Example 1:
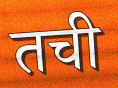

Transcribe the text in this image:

तची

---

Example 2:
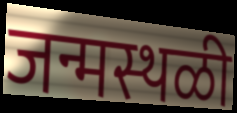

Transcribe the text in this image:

जन्मस्थळी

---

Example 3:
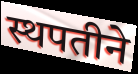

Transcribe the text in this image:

स्थपतीने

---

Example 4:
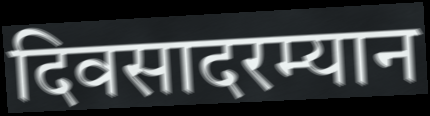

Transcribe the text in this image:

दिवसादरम्यान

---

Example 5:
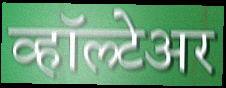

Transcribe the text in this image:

व्हॉल्टेअर